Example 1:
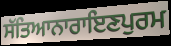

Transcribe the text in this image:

ਸੱਤਿਆਨਾਰਾਇਣਪੁਰਮ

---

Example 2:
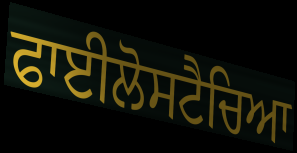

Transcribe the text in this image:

ਫਾਈਲੋਸਟੈਚਿਆ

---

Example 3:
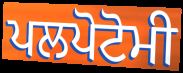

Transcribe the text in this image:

ਪਲਪੋਟੋਮੀ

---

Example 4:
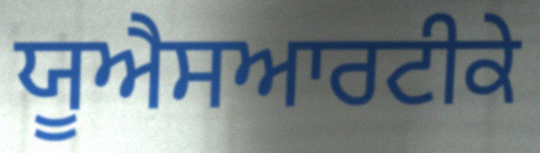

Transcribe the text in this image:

ਯੂਐਸਆਰਟੀਕੇ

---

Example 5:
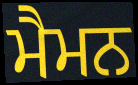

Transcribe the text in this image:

ਮੈਮਨ